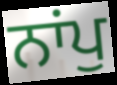
ਨਾਂਪੁ